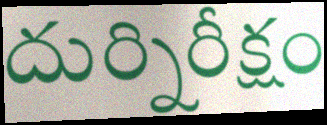
దుర్నిరీక్షం